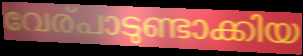
വേര്പാടുണ്ടാക്കിയ